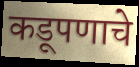
कडूपणाचे